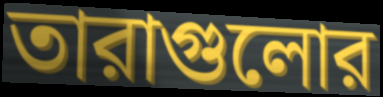
তারাগুলোর